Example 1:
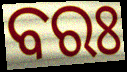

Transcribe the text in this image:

ବରଃ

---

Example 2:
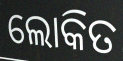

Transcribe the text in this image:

ଲୋକିତ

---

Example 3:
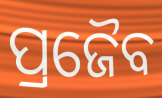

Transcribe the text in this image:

ପ୍ରଜୈବ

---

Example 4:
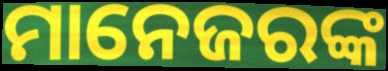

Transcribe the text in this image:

ମାନେଜରଙ୍କ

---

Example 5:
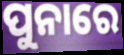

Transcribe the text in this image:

ପୁନାରେ